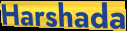
Harshada